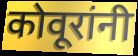
कोवूरांनी